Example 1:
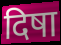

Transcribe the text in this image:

दिषा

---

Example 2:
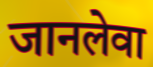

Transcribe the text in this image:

जानलेवा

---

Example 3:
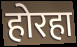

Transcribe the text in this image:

होरहा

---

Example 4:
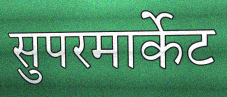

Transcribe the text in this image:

सुपरमार्केट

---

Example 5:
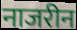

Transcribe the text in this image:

नाजरीन